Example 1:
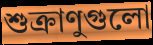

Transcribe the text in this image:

শুক্রাণুগুলো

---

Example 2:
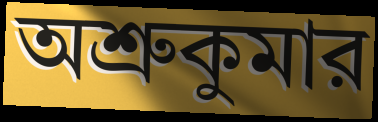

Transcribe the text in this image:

অশ্রুকুমার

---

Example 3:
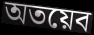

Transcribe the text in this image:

অতয়েব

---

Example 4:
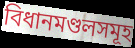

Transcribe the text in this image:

বিধানমণ্ডলসমূহ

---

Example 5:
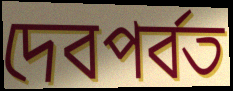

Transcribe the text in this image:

দেবপর্বত